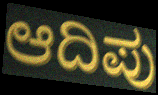
ಆದಿಪು